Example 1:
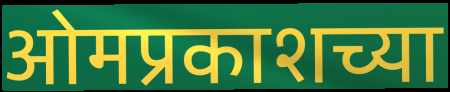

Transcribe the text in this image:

ओमप्रकाशच्या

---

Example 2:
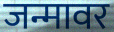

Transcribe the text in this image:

जन्मावर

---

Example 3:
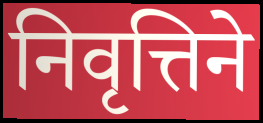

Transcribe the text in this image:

निवृत्तिने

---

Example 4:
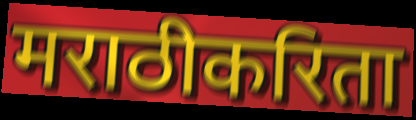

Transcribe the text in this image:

मराठीकरिता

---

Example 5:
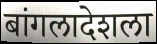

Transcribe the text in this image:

बांगलादेशला